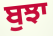
ਬੁਝਾ